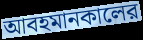
আবহমানকালের